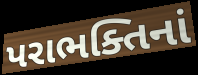
પરાભક્તિનાં